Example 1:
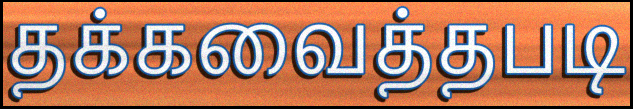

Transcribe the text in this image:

தக்கவைத்தபடி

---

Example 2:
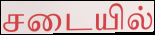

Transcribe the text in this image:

சடையில்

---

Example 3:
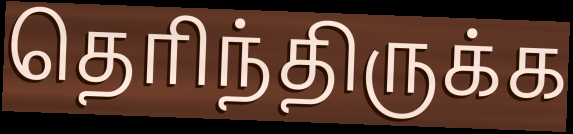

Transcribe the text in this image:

தெரிந்திருக்க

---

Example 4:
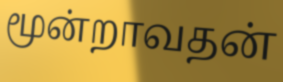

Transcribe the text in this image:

மூன்றாவதன்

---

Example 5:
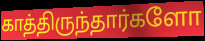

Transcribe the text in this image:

காத்திருந்தார்களோ